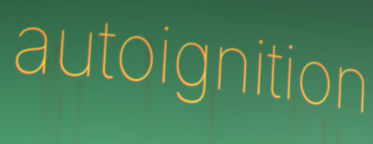
autoignition